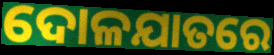
ଦୋଳଯାତରେ